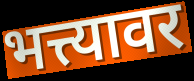
भत्त्यावर